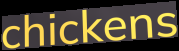
chickens